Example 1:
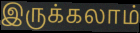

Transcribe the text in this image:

இருக்கலாம்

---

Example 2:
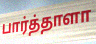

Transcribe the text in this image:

பார்த்தாளா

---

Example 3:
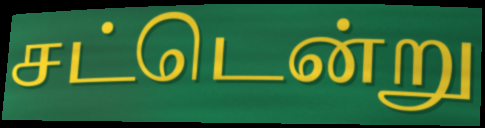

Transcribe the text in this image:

சட்டென்று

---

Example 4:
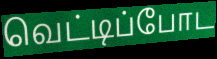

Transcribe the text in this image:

வெட்டிப்போட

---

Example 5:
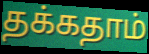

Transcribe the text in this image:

தக்கதாம்